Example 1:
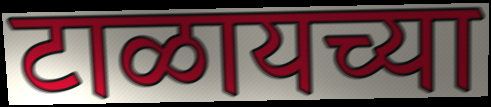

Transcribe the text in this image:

टाळायच्या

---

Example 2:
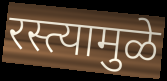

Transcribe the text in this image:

रस्त्यामुळे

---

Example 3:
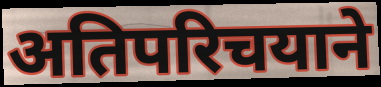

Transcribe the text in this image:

अतिपरिचयाने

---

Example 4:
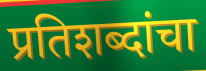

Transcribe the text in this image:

प्रतिशब्दांचा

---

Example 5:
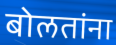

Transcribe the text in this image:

बोलतांना